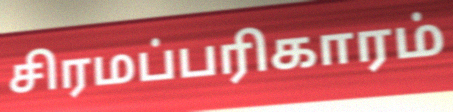
சிரமப்பரிகாரம்